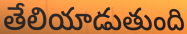
తేలియాడుతుంది